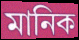
মানিক